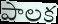
పాలక